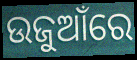
ଉଜୁଆଁରେ